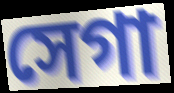
সেগা